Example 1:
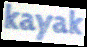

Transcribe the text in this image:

kayak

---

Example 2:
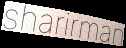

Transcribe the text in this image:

sharirman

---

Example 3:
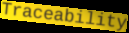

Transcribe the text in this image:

Traceability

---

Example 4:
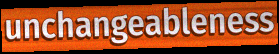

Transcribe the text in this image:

unchangeableness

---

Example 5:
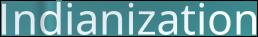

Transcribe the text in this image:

Indianization